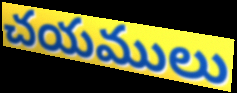
చయములు